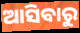
ଆସିବାରୁ